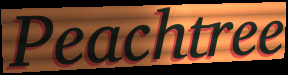
Peachtree